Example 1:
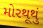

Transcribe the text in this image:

મોરથૂથું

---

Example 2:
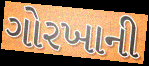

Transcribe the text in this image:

ગોરખાની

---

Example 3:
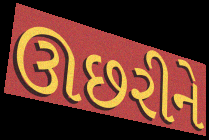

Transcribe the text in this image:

ઊછરીને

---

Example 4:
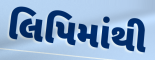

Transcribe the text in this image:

લિપિમાંથી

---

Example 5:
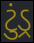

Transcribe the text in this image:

ટુંડ્ર